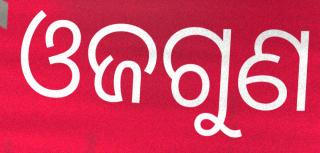
ଓଜଗୁଣ